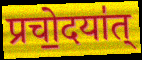
प्रचो॒दया॑त्